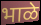
भाळे